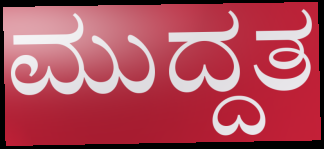
ಮುದ್ದತ